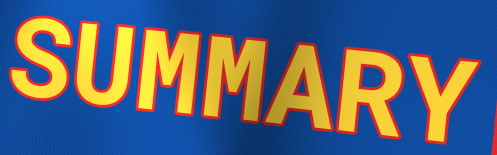
SUMMARY